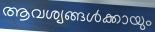
ആവശ്യങ്ങൾക്കായും